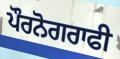
ਪੌਰਨੋਗਰਾਫੀ